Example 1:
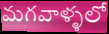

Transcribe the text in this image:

మగవాళ్ళలో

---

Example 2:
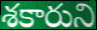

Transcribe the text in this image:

శకారుని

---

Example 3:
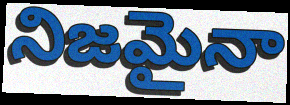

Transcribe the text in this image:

నిజమైనా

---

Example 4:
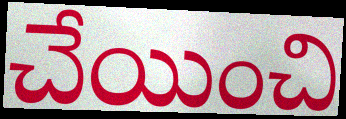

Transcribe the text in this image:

చేయించి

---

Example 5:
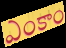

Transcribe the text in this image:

ఎంకాం